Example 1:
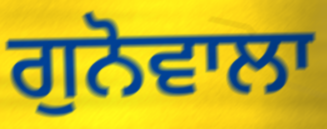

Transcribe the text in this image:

ਗੁਨੋਵਾਲਾ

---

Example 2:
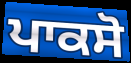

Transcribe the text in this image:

ਪਾਕਸੋ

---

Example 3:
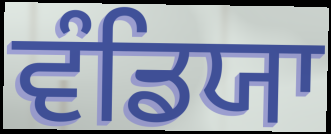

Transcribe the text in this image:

ਵੰਡਿਯਾ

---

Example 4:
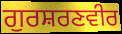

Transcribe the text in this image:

ਗੁਰਸ਼ਰਣਵੀਰ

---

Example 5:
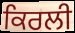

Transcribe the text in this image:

ਕਿਰਲੀ